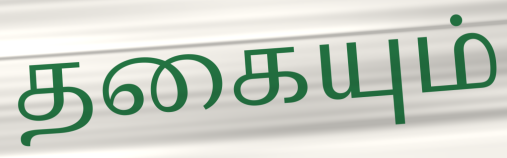
தகையும்